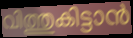
വിത്തുകിട്ടാൻ